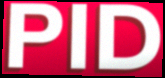
PID